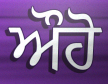
ਔਹੋ